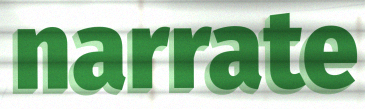
narrate